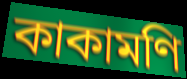
কাকামণি